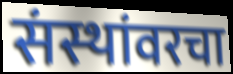
संस्थांवरचा